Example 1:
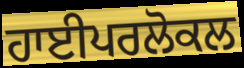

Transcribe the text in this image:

ਹਾਈਪਰਲੋਕਲ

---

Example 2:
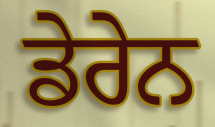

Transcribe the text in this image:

ਡੇਰੇਨ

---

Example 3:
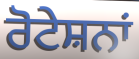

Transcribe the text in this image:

ਰੋਟੇਸ਼ਨਾਂ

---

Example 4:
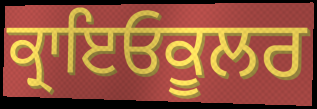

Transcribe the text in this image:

ਕ੍ਰਾਇਓਕੂਲਰ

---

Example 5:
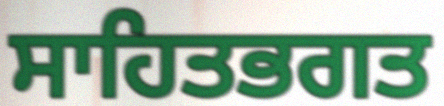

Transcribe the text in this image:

ਸਾਹਿਤਭਗਤ